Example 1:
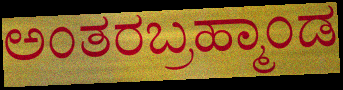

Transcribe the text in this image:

ಅಂತರಬ್ರಹ್ಮಾಂಡ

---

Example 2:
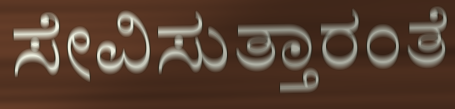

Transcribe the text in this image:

ಸೇವಿಸುತ್ತಾರಂತೆ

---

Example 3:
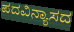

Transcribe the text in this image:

ಪದವಿನ್ಯಾಸದ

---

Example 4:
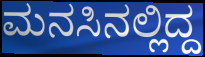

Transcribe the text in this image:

ಮನಸಿನಲ್ಲಿದ್ದ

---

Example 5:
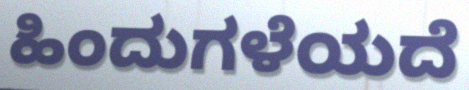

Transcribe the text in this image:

ಹಿಂದುಗಳೆಯದೆ